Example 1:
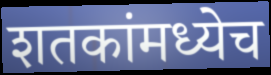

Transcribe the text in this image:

शतकांमध्येच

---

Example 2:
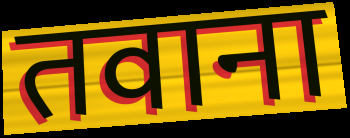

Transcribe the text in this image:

तवाना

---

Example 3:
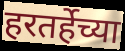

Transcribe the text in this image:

हरतर्हेच्या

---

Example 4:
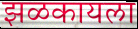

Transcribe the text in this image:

झळकायला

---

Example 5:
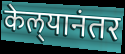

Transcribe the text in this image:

केल्यानंतर